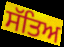
ਸੱਤਿਅ